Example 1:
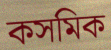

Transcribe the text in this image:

কসমিক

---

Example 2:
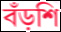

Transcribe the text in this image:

বঁড়শি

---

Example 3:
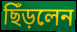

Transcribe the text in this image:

ছিঁড়লেন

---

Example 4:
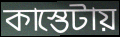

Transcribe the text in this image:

কাস্তেটায়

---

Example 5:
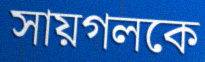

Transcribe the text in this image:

সায়গলকে